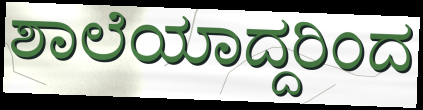
ಶಾಲೆಯಾದ್ದರಿಂದ